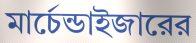
মার্চেন্ডাইজারের